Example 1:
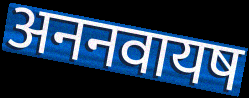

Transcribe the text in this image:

अननवायष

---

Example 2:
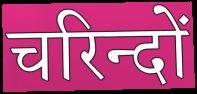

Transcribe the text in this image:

चरिन्दों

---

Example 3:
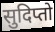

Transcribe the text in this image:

सुदिप्तो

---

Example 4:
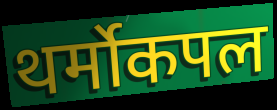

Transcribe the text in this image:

थर्मोकपल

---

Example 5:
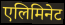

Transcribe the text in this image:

एलिमिनेट